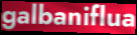
galbaniflua